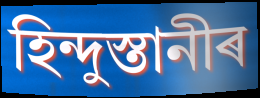
হিন্দুস্তানীৰ